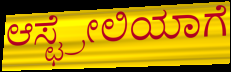
ಆಸ್ಟ್ರೇಲಿಯಾಗೆ